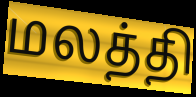
மலத்தி